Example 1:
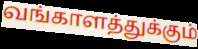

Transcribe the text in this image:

வங்காளத்துக்கும்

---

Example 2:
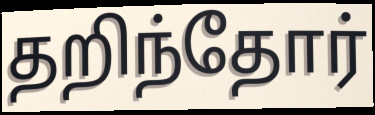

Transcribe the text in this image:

தறிந்தோர்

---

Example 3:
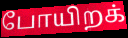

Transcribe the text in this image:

போயிறக்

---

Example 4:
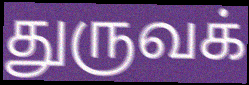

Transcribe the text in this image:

துருவக்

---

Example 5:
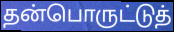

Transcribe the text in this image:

தன்பொருட்டுத்